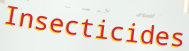
Insecticides